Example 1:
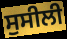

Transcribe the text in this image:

ਸੁਸੀਲੀ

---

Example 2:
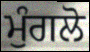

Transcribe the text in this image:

ਮੁੰਗਲੋ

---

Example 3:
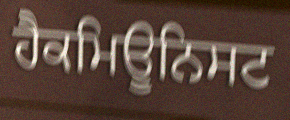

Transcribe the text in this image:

ਹੈਕਮਿਊਨਿਸਟ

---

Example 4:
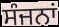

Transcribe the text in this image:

ਸੰਜਨਾਂ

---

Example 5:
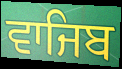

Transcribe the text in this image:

ਵਾਜਿਬ